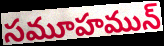
సమూహమున్